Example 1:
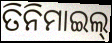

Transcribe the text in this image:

ତିନିମାଇଲ୍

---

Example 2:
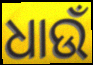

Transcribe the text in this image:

ଧାଉଁ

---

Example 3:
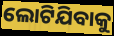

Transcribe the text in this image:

ଲୋଟିଯିବାକୁ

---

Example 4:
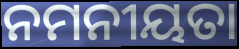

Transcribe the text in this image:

ନମନୀୟତା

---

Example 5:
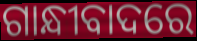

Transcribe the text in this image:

ଗାନ୍ଧୀବାଦରେ